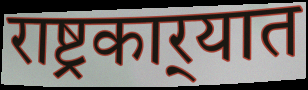
राष्ट्रकार्यात